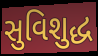
સુવિશુદ્ધ